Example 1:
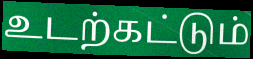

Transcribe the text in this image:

உடற்கட்டும்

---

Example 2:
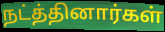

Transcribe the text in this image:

நட்த்தினார்கள்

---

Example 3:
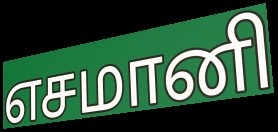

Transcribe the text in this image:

எசமானி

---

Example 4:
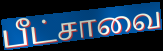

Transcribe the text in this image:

பீட்சாவை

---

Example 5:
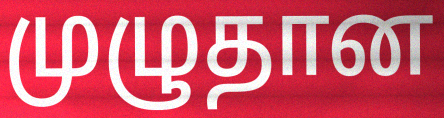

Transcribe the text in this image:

முழுதான